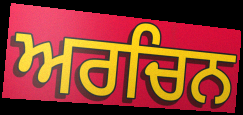
ਅਰਚਿਨ